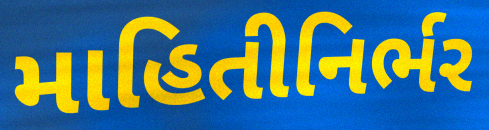
માહિતીનિર્ભર